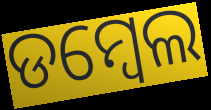
ଡମ୍ୱେଲ